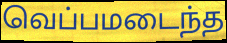
வெப்பமடைந்த